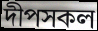
দীপসকল